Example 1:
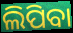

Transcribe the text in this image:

ଲିପିବା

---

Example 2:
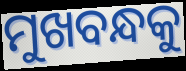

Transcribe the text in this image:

ମୁଖବନ୍ଧକୁ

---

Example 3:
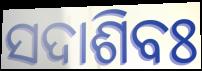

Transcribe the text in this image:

ସଦାଶିବଃ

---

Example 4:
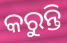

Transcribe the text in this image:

କରୁନ୍ତି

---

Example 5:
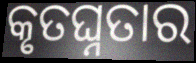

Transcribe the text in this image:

କୃତଘ୍ନତାର